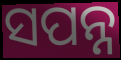
ସପନ୍ନ